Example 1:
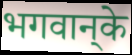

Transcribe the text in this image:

भगवान्‌के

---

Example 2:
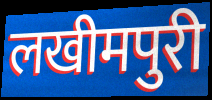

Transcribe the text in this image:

लखीमपुरी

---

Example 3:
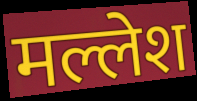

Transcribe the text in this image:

मल्लेश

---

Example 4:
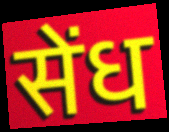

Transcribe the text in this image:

सेंध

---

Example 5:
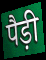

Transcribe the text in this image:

पैड़ी